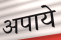
अपाये